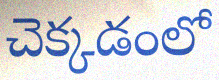
చెక్కడంలో